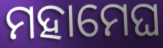
ମହାମେଘ